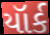
યૉર્ક